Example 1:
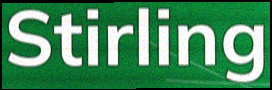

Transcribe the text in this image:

Stirling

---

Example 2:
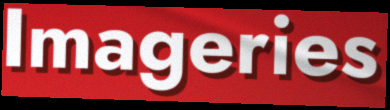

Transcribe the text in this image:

Imageries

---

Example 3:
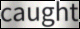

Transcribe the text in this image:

caught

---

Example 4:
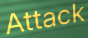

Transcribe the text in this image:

Attack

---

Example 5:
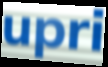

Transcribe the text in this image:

upri